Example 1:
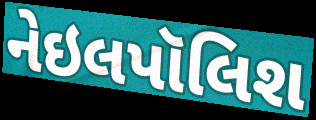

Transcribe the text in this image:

નેઇલપૉલિશ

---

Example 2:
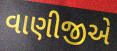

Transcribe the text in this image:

વાણીજીએ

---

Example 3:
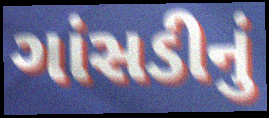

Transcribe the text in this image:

ગાંસડીનું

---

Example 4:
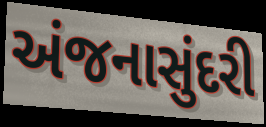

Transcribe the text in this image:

અંજનાસુંદરી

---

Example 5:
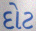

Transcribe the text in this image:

દોટ